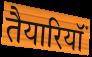
तैयारियॉं